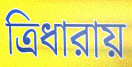
ত্রিধারায়